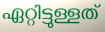
ഏറ്റിട്ടുള്ളത്